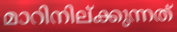
മാറിനില്ക്കുന്നത്